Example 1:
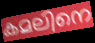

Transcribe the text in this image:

കമലിനെ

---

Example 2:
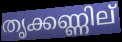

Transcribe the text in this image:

തൃക്കണ്ണില്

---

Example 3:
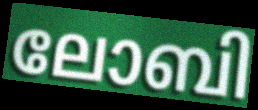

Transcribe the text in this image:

ലോബി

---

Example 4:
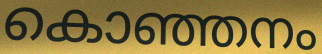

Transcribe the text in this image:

കൊഞ്ഞനം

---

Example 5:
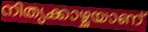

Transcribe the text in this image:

നിത്യക്കാഴ്ചയാണ്